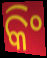
କିଂ